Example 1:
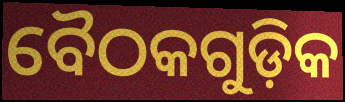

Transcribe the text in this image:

ବୈଠକଗୁଡ଼ିକ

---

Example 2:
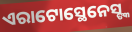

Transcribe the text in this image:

ଏରାଟୋସ୍ଥେନେସ୍ଙ୍କ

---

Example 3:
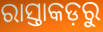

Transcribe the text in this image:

ରାସ୍ତାକଡ଼ରୁ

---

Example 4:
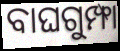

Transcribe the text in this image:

ବାଘଗୁମ୍ଫା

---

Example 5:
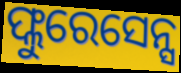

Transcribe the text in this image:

ଫ୍ଲୁରେସେନ୍ସ